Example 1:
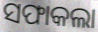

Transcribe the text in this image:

ସଫାକଲା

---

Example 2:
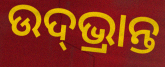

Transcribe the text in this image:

ଉଦ୍‌ଭ୍ରାନ୍ତ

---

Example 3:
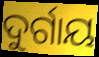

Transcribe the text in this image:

ଦୁର୍ଗାୟ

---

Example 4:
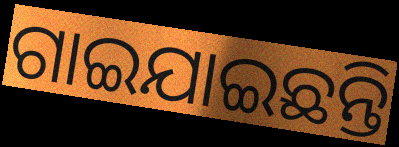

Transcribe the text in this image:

ଗାଇଯାଇଛନ୍ତି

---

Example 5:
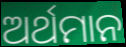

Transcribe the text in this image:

ଅର୍ଥମାନ